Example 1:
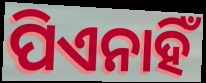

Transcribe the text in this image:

ପିଏନାହିଁ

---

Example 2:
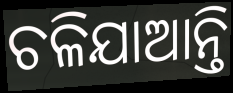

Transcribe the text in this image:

ଚଳିଯାଆନ୍ତି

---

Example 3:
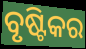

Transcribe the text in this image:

ବୃଷ୍ଟିକର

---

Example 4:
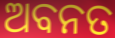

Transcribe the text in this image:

ଅବନତ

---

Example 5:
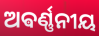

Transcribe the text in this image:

ଅଵର୍ଣ୍ଣନୀୟ